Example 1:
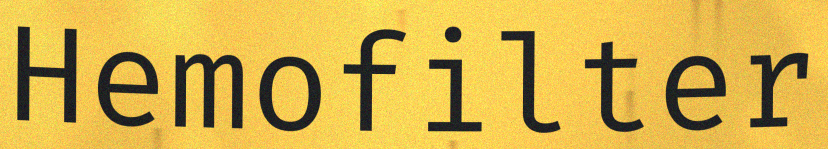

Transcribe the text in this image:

Hemofilter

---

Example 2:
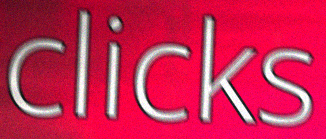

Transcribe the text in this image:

clicks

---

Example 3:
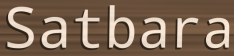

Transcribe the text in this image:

Satbara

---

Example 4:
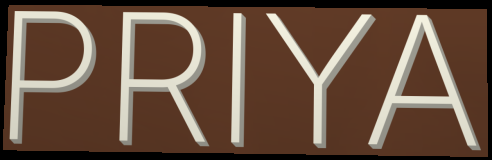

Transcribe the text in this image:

PRIYA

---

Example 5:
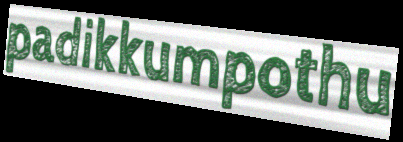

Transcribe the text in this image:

padikkumpothu